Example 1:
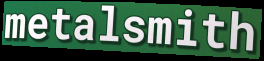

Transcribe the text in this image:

metalsmith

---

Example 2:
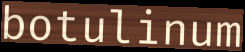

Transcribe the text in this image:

botulinum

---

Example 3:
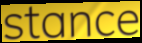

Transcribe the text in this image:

stance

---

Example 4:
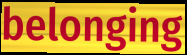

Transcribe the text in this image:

belonging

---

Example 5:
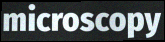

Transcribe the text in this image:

microscopy